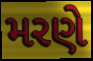
મરણે